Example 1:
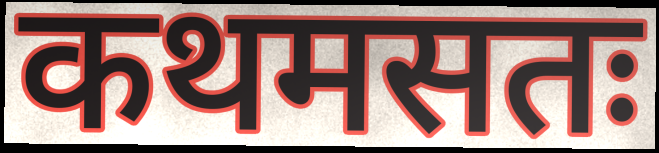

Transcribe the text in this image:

कथमसतः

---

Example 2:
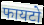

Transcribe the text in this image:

फायटो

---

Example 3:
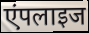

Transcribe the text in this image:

एंपलाइज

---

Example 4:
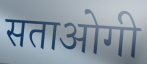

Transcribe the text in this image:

सताओगी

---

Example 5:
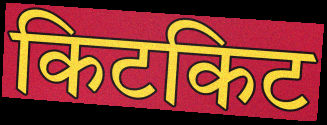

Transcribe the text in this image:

किटकिट